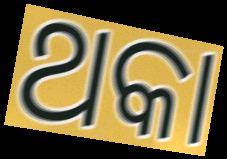
ଥକା